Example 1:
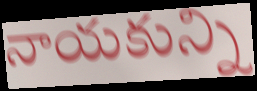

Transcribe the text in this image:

నాయకున్ని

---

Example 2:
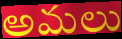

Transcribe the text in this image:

అమలు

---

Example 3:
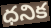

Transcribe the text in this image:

ధనిక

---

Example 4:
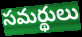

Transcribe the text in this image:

సమర్థులు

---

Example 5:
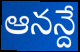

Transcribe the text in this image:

ఆనన్దే